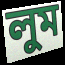
লুম